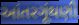
આંતરગૂંથણી